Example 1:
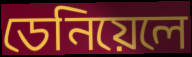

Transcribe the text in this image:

ডেনিয়েলে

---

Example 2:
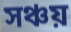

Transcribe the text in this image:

সঞ্চয়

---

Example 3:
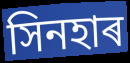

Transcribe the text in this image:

সিনহাৰ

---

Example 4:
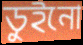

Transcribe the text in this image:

ডুইনো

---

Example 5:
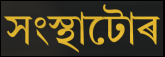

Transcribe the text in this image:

সংস্থাটোৰ